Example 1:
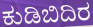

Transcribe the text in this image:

ಕುಡಿಬಿದಿರ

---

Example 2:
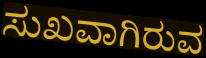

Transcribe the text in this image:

ಸುಖವಾಗಿರುವ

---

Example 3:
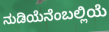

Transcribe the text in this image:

ನುಡಿಯೆನೆಂಬಲ್ಲಿಯೆ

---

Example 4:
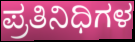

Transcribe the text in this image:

ಪ್ರತಿನಿಧಿಗಳ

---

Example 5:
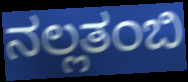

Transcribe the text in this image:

ನಲ್ಲತಂಬಿ